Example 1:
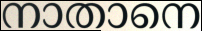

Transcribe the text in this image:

നാതാനെ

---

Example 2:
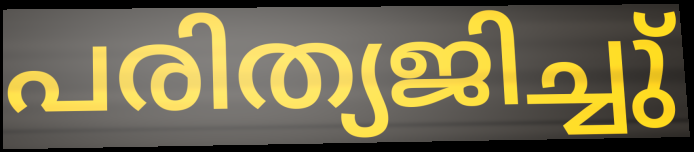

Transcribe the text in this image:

പരിത്യജിച്ചു്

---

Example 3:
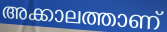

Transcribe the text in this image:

അക്കാലത്താണ്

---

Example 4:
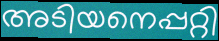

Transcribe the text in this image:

അടിയനെപ്പറ്റി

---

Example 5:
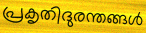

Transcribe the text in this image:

പ്രകൃതിദുരന്തങ്ങൾ